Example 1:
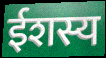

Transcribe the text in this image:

ईशस्य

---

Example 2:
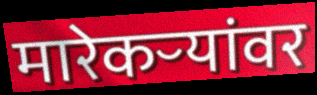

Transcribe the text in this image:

मारेकऱ्यांवर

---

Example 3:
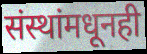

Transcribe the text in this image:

संस्थांमधूनही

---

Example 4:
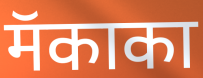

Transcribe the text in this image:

मॅकाका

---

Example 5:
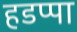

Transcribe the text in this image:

हडप्पा